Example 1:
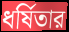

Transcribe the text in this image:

ধর্ষিতার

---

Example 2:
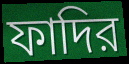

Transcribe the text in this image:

ফাদির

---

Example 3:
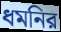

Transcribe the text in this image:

ধমনির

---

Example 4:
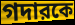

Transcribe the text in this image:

গদারকে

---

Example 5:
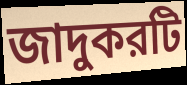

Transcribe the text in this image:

জাদুকরটি